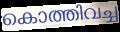
കൊത്തിവച്ച